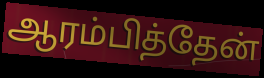
ஆரம்பித்தேன்